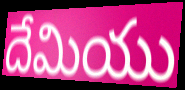
దేమియు